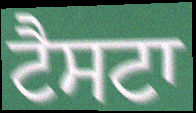
ਟੈਸਟਾ